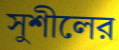
সুশীলের